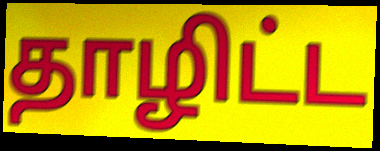
தாழிட்ட